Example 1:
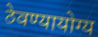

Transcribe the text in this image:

ठेवण्यायोग्य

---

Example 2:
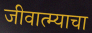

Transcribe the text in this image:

जीवात्म्याचा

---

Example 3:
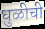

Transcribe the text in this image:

धुळीची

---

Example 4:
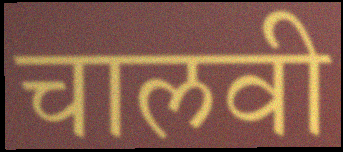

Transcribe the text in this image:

चालवी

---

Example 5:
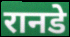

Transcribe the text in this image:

रानडे